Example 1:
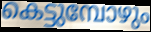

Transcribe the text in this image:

കെട്ടുമ്പോഴും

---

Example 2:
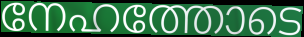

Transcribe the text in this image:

നേഹത്തോടെ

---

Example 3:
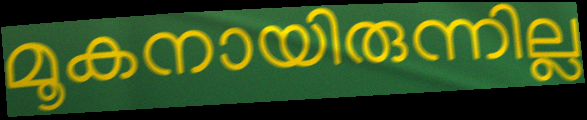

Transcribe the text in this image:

മൂകനായിരുന്നില്ല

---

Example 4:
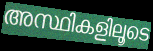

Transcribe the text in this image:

അസ്ഥികളിലൂടെ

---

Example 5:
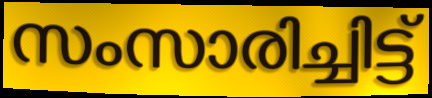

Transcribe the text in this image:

സംസാരിച്ചിട്ട്